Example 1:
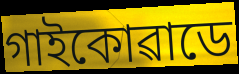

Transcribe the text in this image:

গাইকোৱাডে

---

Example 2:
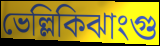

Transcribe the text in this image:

ভেল্লিকিঝাংগু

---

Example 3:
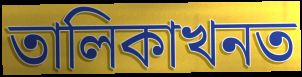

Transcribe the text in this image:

তালিকাখনত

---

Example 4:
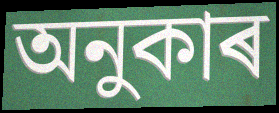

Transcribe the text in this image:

অনুকাৰ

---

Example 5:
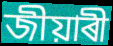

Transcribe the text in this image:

জীয়াৰী